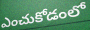
ఎంచుకోడంలో